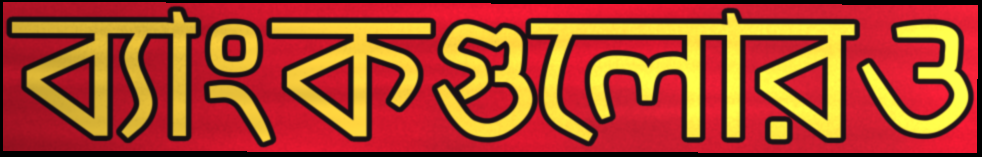
ব্যাংকগুলোরও